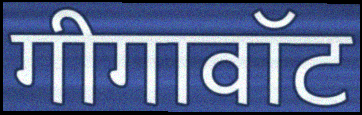
गीगावॉट